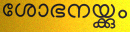
ശോഭനയ്ക്കും